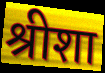
श्रीशा